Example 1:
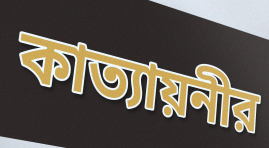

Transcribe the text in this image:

কাত্যায়নীর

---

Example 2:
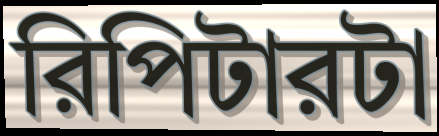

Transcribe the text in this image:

রিপিটারটা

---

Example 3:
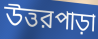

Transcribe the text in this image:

উত্তরপাড়া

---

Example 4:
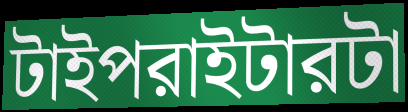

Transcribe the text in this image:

টাইপরাইটারটা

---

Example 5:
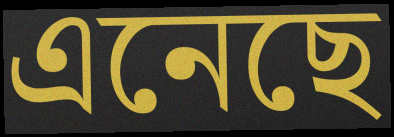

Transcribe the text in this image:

এনেছে